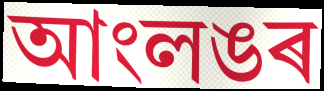
আংলঙৰ